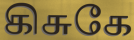
கிசுகே